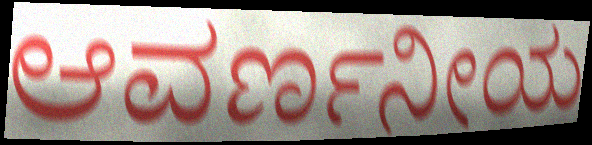
ಆವರ್ಣನೀಯ